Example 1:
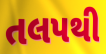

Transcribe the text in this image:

તલપથી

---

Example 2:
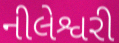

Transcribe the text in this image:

નીલેશ્વરી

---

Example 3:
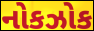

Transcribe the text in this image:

નોકઝોક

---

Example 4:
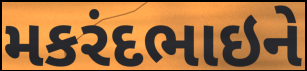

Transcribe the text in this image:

મકરંદભાઇને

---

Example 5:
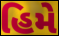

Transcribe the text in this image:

હિમે